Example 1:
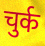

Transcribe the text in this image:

चुर्क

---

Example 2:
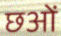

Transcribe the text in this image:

छओं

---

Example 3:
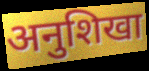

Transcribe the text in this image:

अनुशिखा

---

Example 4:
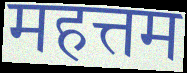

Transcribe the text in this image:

महत्तम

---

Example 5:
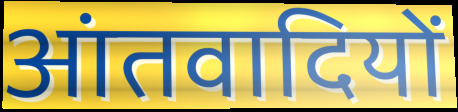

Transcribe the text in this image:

आंतवादियों